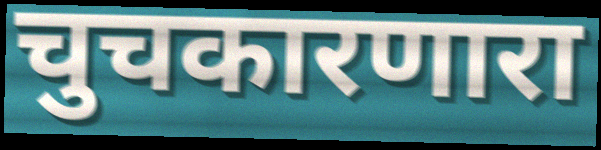
चुचकारणारा